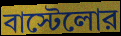
বাস্টেলোর